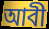
আবী